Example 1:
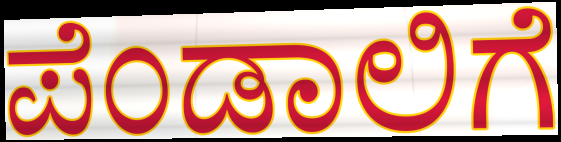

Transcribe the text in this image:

ಪೆಂಡಾಲಿಗೆ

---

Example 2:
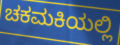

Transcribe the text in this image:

ಚಕಮಕಿಯಲ್ಲಿ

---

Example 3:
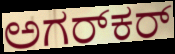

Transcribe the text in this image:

ಅಗರ್‌ಕರ್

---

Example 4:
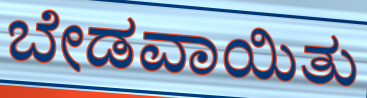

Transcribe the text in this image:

ಬೇಡವಾಯಿತು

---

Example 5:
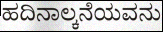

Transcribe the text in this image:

ಹದಿನಾಲ್ಕನೆಯವನು